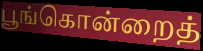
பூங்கொன்றைத்